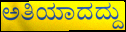
ಅತಿಯಾದದ್ದು